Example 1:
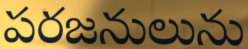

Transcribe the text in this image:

పరజనులును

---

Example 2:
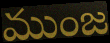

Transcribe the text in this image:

ముంజ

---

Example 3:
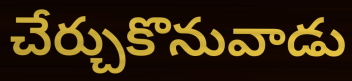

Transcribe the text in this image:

చేర్చుకొనువాడు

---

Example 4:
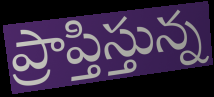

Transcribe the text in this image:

ప్రాప్తిస్తున్న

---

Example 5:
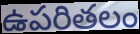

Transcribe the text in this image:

ఉపరితలం